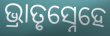
ଭ୍ରାତୃସ୍ନେହେ